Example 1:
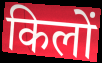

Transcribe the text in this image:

किलों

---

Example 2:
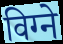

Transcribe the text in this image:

विग्ने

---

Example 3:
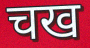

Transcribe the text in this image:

चख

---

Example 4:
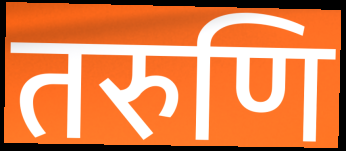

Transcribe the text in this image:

तरुणि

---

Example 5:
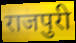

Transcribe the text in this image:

राजपुरी